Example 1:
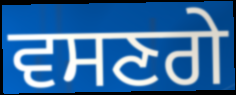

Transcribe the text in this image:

ਵਸਣਗੇ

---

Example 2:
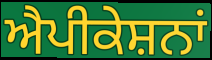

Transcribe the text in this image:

ਐਪੀਕੇਸ਼ਨਾਂ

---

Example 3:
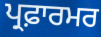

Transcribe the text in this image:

ਪ੍ਰਫ਼ਾਰਮਰ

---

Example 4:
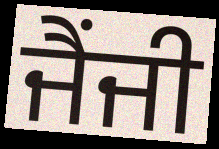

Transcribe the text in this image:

ਜੈਂਜੀ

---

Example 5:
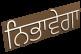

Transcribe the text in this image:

ਨਿਭਾਵੇਗਾ